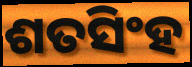
ଶତସିଂହ